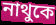
নাথুকে